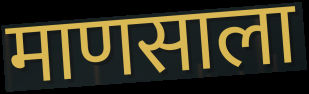
माणसाला